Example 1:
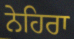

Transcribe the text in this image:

ਨੇਹਿਰਾ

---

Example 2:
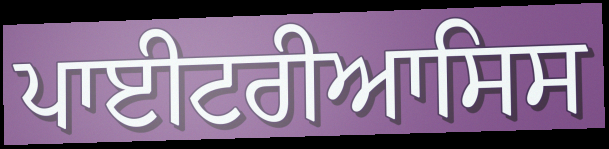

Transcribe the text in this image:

ਪਾਈਟਰੀਆਸਿਸ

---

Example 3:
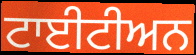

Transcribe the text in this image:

ਟਾਈਟੀਅਨ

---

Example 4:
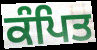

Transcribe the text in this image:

ਕੰਪਿਤ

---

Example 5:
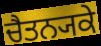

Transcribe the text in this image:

ਚੈਤਨ੍ਯਕੇ